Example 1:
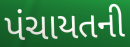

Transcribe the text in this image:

પંચાયતની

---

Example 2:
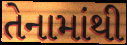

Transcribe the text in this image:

તેનામાંથી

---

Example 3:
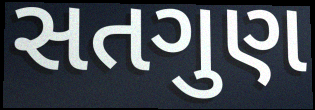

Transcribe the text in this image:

સતગુણ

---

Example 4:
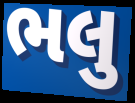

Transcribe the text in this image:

ભલુ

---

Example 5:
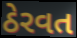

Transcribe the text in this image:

ઠેરવત